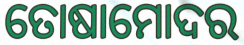
ତୋଷାମୋଦର